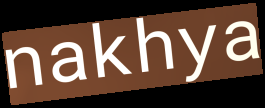
nakhya